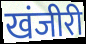
खंजीरी